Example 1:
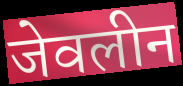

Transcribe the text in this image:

जेवलीन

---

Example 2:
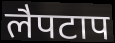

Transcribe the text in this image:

लैपटाप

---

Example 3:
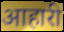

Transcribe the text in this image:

आहारी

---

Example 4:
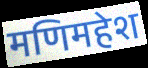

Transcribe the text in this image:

मणिमहेश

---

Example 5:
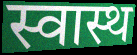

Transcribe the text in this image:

स्‍वास्‍थ